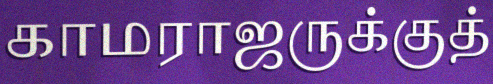
காமராஜருக்குத்